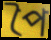
পৈ